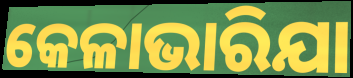
କେଳାଭାରିଯା